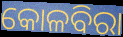
କୋଳବିରା